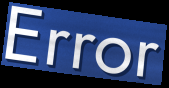
Error